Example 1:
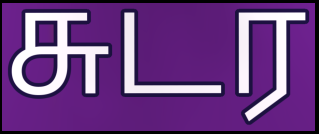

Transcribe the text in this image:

சுடர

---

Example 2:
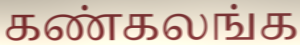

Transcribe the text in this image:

கண்கலங்க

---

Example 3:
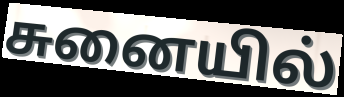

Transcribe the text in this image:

சுனையில்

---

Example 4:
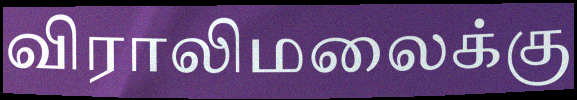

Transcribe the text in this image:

விராலிமலைக்கு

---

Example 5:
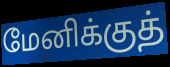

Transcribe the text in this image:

மேனிக்குத்